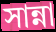
সান্না